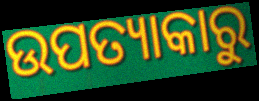
ଉପତ୍ୟାକାରୁ